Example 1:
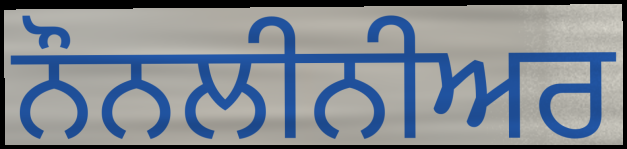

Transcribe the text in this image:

ਨੌਨਲੀਨੀਅਰ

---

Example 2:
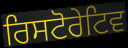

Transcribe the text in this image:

ਰਿਸਟੋਰੇਟਿਵ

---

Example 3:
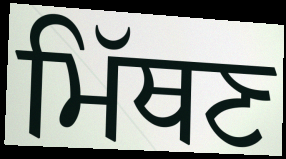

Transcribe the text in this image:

ਮਿੱਥਣ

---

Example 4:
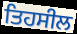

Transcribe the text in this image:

ਤਿਹਸੀਲ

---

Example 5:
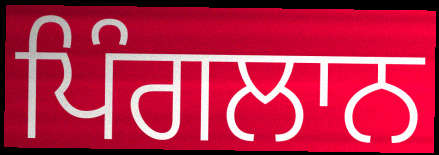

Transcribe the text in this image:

ਪਿੰਗਲਾਨ